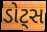
ડોટ્સ